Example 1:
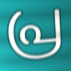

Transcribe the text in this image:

പ്ര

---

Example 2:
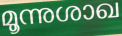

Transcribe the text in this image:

മൂന്നുശാഖ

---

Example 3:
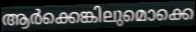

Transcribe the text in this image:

ആർക്കെങ്കിലുമൊക്കെ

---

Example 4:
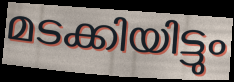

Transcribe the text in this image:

മടക്കിയിട്ടും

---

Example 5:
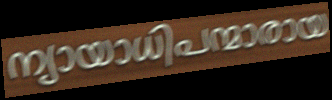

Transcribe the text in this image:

ന്യായാധിപന്മാരായ